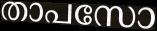
താപസോ